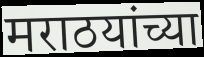
मराठयांच्या